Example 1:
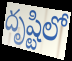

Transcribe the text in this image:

దృష్టిలో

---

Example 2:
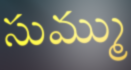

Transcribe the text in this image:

సుమ్ము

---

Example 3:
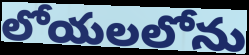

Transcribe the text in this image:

లోయలలోను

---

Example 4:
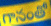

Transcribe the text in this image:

గానంతో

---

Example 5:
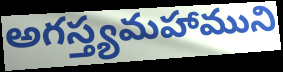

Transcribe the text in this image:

అగస్త్యమహాముని